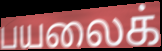
பயலைக்